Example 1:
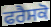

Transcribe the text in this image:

ਫਰੈਸਕੋ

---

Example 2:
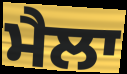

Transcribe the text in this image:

ਮੈਲਾ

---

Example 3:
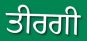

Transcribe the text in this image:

ਤੀਰਗੀ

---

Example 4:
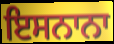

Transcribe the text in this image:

ਇਸਨਾਨਾ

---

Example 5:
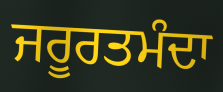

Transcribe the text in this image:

ਜਰੂਰਤਮੰਦਾ